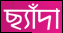
ছ্যাঁদা